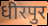
धीरपुर